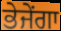
ਭੇਜੇਂਗਾ